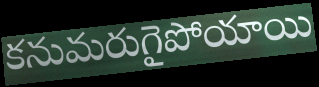
కనుమరుగైపోయాయి